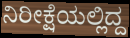
ನಿರೀಕ್ಷೆಯಲ್ಲಿದ್ದ